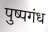
पुष्पगंध